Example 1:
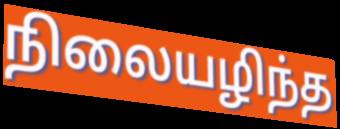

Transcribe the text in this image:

நிலையழிந்த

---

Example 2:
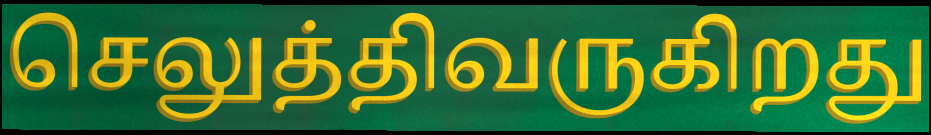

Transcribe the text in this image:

செலுத்திவருகிறது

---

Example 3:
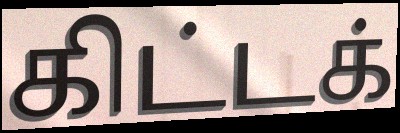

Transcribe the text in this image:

கிட்டக்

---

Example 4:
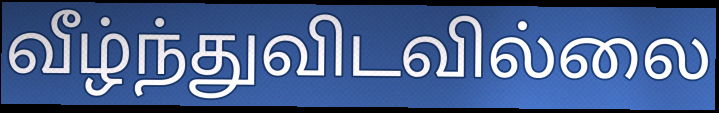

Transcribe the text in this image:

வீழ்ந்துவிடவில்லை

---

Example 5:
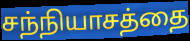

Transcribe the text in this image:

சந்நியாசத்தை